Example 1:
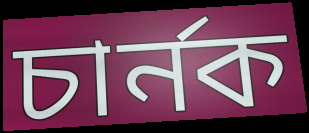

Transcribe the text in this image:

চার্নক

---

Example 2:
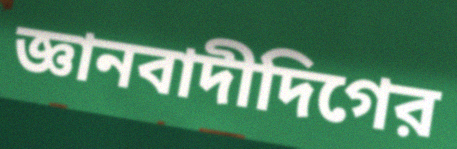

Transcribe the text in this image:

জ্ঞানবাদীদিগের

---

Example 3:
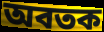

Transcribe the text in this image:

অবতক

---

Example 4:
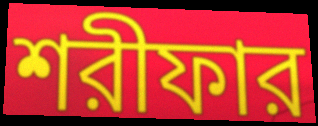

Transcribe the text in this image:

শরীফার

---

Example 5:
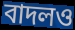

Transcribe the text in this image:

বাদলও